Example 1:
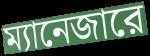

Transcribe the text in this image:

ম্যানেজারে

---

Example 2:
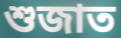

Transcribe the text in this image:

শুজাত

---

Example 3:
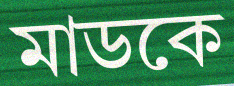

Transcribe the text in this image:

মাডকে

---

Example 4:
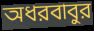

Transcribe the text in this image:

অধরবাবুর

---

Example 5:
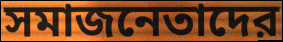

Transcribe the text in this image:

সমাজনেতাদের